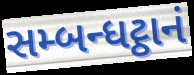
સમ્બન્ધટ્ઠાનં